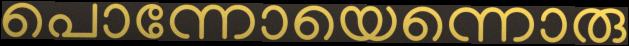
പൊന്നോയെന്നൊരു